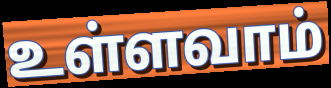
உள்ளவாம்